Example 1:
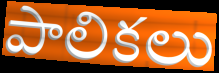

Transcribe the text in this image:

పాలికలు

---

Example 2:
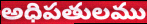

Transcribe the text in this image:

అధిపతులము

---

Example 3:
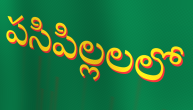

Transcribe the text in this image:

పసిపిల్లలలో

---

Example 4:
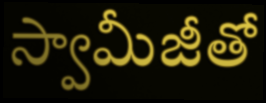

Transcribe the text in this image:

స్వామీజీతో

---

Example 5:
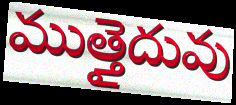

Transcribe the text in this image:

ముత్తైదువు